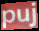
puj